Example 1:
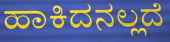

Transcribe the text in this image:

ಹಾಕಿದನಲ್ಲದೆ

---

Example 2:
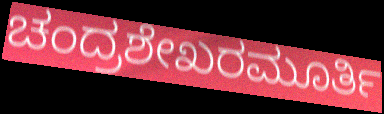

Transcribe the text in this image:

ಚಂದ್ರಶೇಖರಮೂರ್ತಿ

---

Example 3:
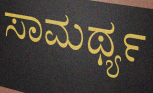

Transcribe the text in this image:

ಸಾಮರ್ಥ್ಯ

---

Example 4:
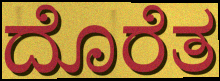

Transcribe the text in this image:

ದೊರೆತ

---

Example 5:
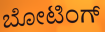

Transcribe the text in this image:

ಬೋಟಿಂಗ್